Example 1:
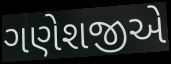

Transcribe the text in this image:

ગણેશજીએ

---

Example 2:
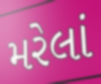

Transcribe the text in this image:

મરેલાં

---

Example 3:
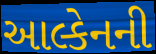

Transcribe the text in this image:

આલ્કેનની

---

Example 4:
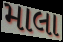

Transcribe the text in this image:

માલા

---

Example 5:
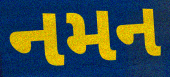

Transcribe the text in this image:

નમન